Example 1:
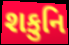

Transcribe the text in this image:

શકુનિ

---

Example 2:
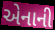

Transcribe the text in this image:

એનાની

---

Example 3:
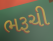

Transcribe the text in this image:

ભરૂચી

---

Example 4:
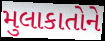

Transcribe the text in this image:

મુલાકાતોને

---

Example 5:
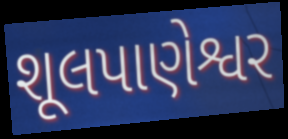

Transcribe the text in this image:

શૂલપાણેશ્વર